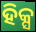
ହିକ୍ସ